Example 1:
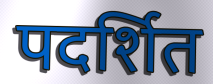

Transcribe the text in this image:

पदर्शित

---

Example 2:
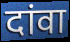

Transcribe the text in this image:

दांवा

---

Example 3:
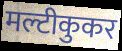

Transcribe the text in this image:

मल्टीकुकर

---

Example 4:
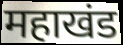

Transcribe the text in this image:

महाखंड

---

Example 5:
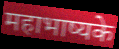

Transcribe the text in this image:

महाभाष्यके